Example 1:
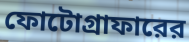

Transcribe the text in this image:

ফোটোগ্রাফারের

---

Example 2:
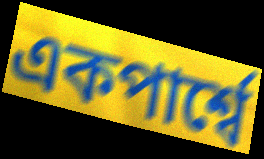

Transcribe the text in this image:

একপার্শ্বে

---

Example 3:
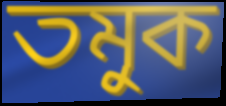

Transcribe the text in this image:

তমুক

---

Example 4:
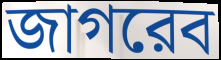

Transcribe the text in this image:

জাগরেব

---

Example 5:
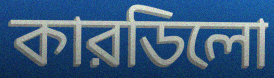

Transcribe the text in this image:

কারডিলো